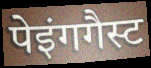
पेइंगगैस्ट